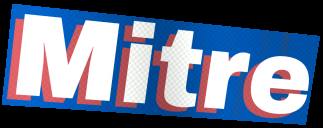
Mitre